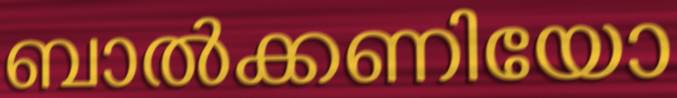
ബാൽക്കണിയോ